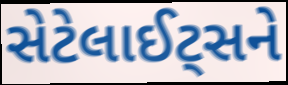
સેટેલાઈટ્સને